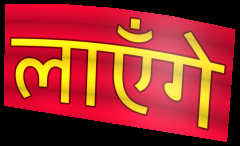
लाएँगे